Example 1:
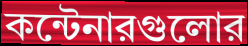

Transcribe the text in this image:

কন্টেনারগুলোর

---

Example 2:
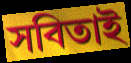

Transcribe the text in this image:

সবিতাই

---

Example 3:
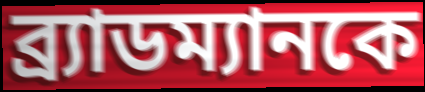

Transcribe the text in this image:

ব্র্যাডম্যানকে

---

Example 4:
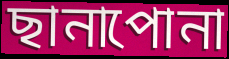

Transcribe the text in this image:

ছানাপোনা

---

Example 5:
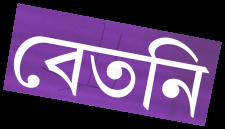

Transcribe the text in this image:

বেতনি